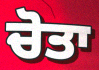
ਚੋਤਾ